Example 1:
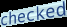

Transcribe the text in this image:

checked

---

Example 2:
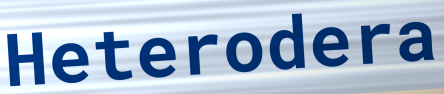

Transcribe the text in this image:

Heterodera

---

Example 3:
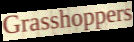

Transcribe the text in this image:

Grasshoppers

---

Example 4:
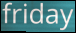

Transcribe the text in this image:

friday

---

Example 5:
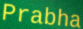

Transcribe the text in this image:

Prabha